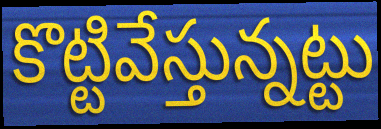
కొట్టివేస్తున్నట్టు